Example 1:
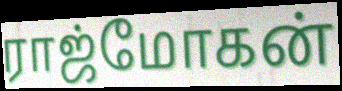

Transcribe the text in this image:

ராஜ்மோகன்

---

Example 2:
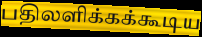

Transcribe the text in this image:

பதிலளிக்கக்கூடிய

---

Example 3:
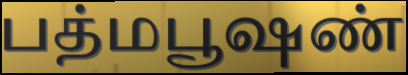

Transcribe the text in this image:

பத்மபூஷண்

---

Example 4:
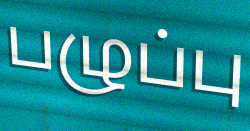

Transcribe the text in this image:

பழுப்பு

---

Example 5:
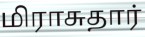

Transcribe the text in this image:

மிராசுதார்